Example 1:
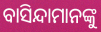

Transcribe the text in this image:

ବାସିନ୍ଦାମାନଙ୍କୁ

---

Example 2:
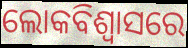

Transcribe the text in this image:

ଲୋକବିଶ୍ୱାସରେ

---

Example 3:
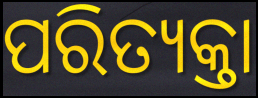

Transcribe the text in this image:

ପରିତ୍ୟକ୍ତା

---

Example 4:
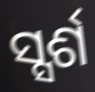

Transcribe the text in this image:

ସ୍ସର୍ଶ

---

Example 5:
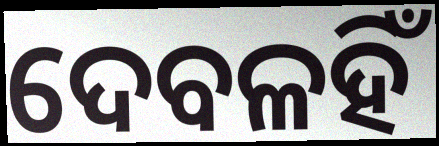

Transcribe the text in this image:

ଦେବଳହିଁ